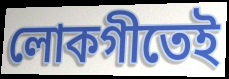
লোকগীতেই